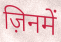
ज़िनमें